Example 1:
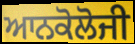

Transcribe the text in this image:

ਆਨਕੋਲੋਜੀ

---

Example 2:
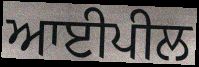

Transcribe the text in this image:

ਆਈਪੀਲ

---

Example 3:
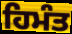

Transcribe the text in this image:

ਹਿਮੰਤ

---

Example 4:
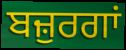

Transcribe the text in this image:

ਬਜ਼ੁਰਗਾਂ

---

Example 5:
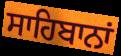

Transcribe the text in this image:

ਸਾਹਿਬਾਨਾਂ